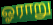
ஓராறு